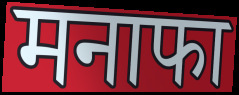
मनाफा